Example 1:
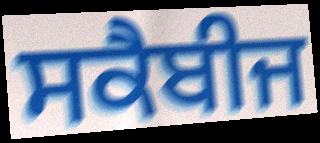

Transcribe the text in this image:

ਸਕੈਬੀਜ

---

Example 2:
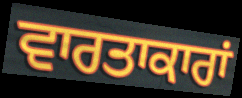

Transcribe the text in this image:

ਵਾਰਤਾਕਾਰਾਂ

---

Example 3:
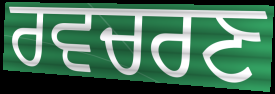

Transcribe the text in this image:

ਰਵਚਰਣ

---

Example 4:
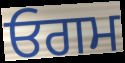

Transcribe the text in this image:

ਓਗਮ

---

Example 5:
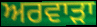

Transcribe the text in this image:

ਅਰਵਾੜਾ